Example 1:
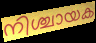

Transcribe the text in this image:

നിശ്ചായക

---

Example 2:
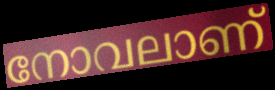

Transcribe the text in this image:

നോവലാണ്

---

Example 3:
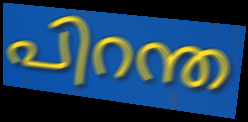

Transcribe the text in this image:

പിറന്ത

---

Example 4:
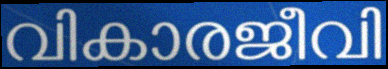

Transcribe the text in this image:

വികാരജീവി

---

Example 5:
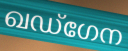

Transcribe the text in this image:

ഖഡ്ഗേന